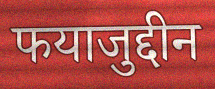
फयाजुद्दीन